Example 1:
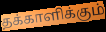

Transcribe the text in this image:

தக்காளிக்கும்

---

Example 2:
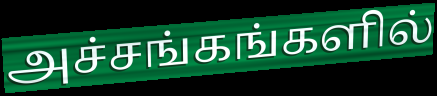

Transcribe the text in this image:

அச்சங்கங்களில்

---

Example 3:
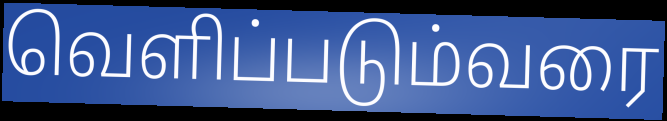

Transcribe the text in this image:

வெளிப்படும்வரை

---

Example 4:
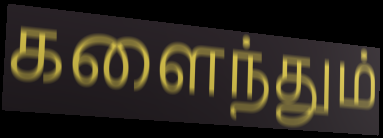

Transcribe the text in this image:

களைந்தும்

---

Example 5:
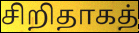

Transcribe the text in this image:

சிறிதாகத்